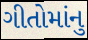
ગીતોમાંનુ